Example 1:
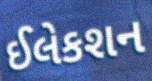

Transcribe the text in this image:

ઈલેકશન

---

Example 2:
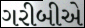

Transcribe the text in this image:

ગરીબીએ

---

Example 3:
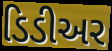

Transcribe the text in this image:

ડિડીઅર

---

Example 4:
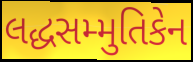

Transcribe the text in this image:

લદ્ધસમ્મુતિકેન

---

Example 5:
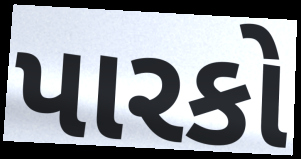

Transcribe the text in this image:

પારકો